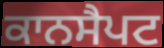
ਕਾਨਸੈਪਟ